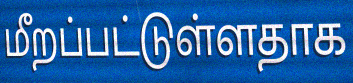
மீறப்பட்டுள்ளதாக